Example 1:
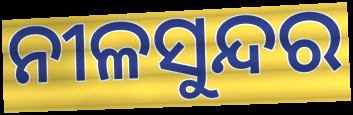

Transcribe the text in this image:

ନୀଳସୁନ୍ଦର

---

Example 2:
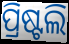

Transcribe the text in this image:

ପ୍ରିଷ୍ଟଲି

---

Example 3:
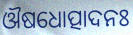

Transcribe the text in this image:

ଔଷଧୋତ୍ପାଦନଃ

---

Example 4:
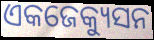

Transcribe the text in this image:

ଏକଜେକ୍ୟୁସନ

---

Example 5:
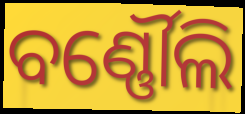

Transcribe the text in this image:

ବର୍ଣ୍ଣୌଲି